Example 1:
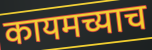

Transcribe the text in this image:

कायमच्याच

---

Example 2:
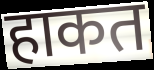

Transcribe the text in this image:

हाकत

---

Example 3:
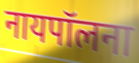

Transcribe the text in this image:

नायपॉलना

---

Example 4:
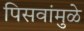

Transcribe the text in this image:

पिसवांमुळे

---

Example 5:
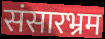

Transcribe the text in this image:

संसारभ्रम